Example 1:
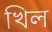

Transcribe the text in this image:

খিল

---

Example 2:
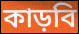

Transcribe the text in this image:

কাড়বি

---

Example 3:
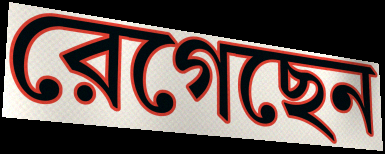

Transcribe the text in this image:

রেগেছেন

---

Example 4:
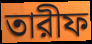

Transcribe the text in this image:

তারীফ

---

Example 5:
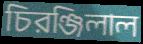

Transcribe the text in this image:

চিরঞ্জিলাল